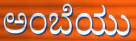
ಅಂಬೆಯು